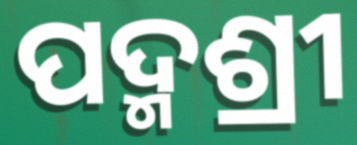
ପଦ୍ମଶ୍ରୀ